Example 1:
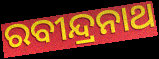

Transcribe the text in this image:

ରବୀନ୍ଦ୍ରନାଥ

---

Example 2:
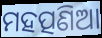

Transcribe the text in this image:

ମହତ୍ପଣିଆ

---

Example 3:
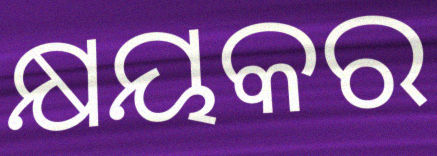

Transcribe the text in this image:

କ୍ଷୟକର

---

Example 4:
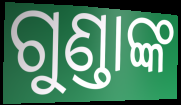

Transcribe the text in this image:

ଗୁଣ୍ଡାଙ୍କ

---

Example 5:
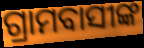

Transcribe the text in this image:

ଗ୍ରାମବାସୀଙ୍କ